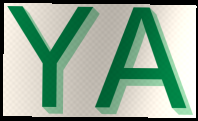
YA